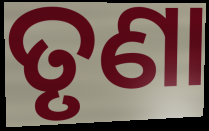
ତୃଣା